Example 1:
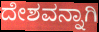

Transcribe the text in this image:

ದೇಶವನ್ನಾಗಿ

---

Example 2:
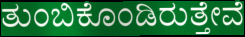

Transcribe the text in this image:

ತುಂಬಿಕೊಂಡಿರುತ್ತೇವೆ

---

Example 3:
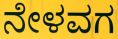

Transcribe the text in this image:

ನೇಳವಗ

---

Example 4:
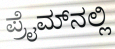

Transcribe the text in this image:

ಪ್ರೈಮ್‌ನಲ್ಲಿ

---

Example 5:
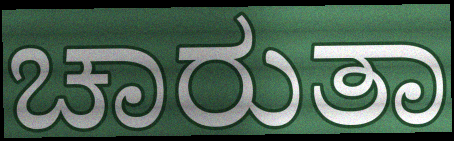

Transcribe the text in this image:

ಚಾರುತಾ